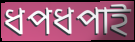
ধপধপাই